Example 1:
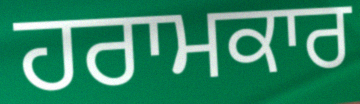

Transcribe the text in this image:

ਹਰਾਮਕਾਰ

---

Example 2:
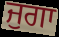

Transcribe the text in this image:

ਜੁਗਾ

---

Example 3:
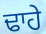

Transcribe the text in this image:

ਢਾਹੇ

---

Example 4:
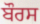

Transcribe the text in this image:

ਬੌਰਸ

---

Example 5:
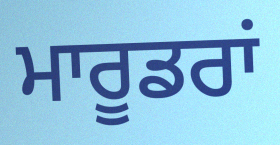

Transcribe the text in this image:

ਮਾਰੂਡਰਾਂ